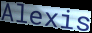
Alexis